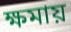
ক্ষমায়